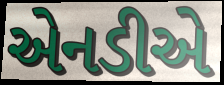
એનડીએ